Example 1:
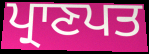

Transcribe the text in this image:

ਪ੍ਰਾਣਪਤ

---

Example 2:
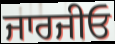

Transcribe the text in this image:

ਜਾਰਜੀਓ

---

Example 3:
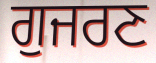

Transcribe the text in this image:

ਗੁਜਰਣ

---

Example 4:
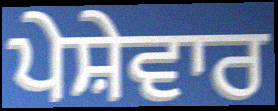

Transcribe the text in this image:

ਪੇਸ਼ੇਵਾਰ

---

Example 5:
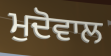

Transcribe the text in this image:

ਮੁਦੋਵਾਲ